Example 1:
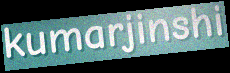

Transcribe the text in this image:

kumarjinshi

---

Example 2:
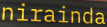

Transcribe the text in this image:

nirainda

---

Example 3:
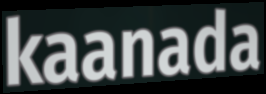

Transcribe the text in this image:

kaanada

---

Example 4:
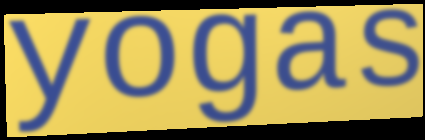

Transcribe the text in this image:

yogas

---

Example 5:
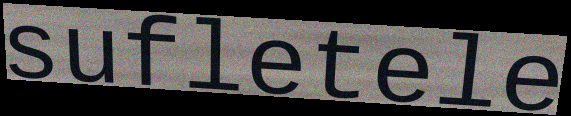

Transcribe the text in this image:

sufletele